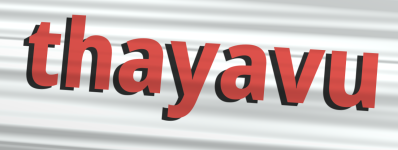
thayavu